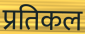
प्रतिकल